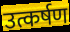
उत्कर्षण